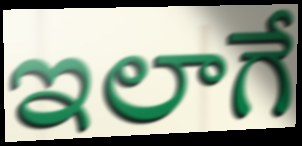
ఇలాగే